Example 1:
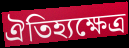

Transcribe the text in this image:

ঐতিহ্যক্ষেত্ৰ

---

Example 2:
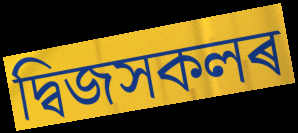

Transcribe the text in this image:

দ্বিজসকলৰ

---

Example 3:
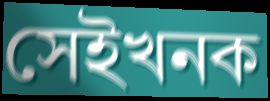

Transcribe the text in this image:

সেইখনক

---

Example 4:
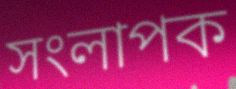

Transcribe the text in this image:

সংলাপক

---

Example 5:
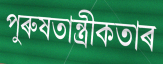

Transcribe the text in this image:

পুৰুষতান্ত্ৰীকতাৰ